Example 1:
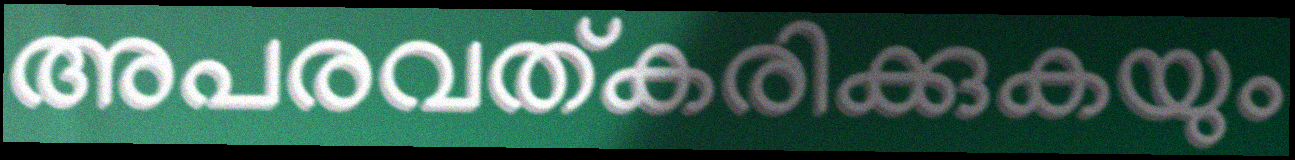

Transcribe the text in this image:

അപരവത്കരിക്കുകയും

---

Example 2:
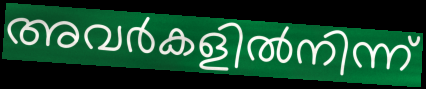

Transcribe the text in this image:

അവർകളിൽനിന്ന്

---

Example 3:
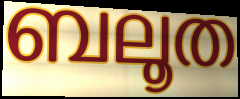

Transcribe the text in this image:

ബലൂത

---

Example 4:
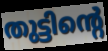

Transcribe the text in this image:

തുട്ടിന്റെ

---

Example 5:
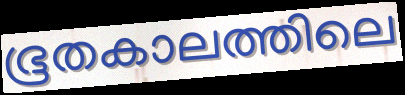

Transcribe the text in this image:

ഭൂതകാലത്തിലെ